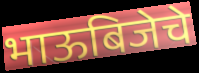
भाऊबिजेचे